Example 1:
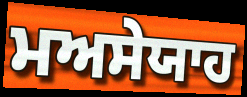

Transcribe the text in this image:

ਮਅਸੇਯਾਹ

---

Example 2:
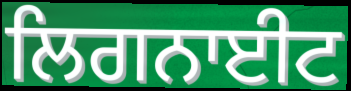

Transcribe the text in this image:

ਲਿਗਨਾਈਟ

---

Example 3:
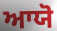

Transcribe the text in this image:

ਆਯੋ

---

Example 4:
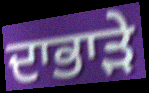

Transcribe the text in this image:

ਦਾਭਾੜੇ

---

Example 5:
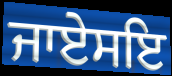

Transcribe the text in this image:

ਜਾਏਸਇ